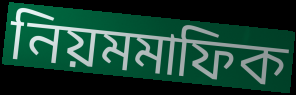
নিয়মমাফিক